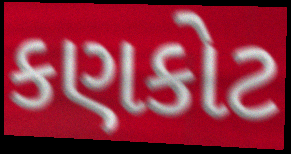
કણકોટ